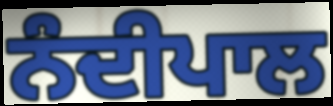
ਨੰਦੀਪਾਲ